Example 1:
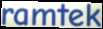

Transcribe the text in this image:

ramtek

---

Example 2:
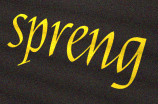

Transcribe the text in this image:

spreng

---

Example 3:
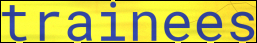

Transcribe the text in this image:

trainees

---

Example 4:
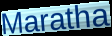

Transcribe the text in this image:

Maratha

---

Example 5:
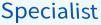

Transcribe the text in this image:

Specialist